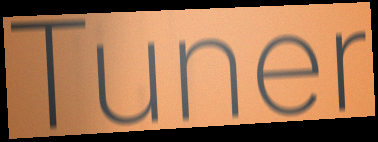
Tuner